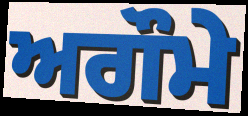
ਅਗੌਮੇ